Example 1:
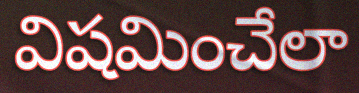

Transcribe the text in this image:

విషమించేలా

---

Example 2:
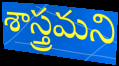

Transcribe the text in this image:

శాస్త్రమని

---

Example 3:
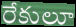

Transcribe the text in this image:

రేకులూ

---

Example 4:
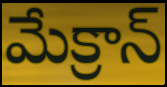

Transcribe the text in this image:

మేక్రాన్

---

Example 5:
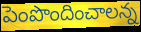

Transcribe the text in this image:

పెంపొందించాలన్న